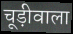
चूड़ीवाला